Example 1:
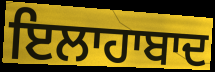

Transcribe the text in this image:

ਇਲਾਹਾਬਾਦ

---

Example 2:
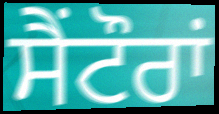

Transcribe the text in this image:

ਸੈਂਟੌਰਾਂ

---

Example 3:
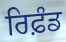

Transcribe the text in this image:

ਰਿਫ਼ੰਡ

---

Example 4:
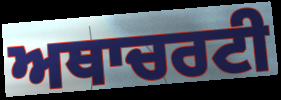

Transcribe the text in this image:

ਅਥਾਚਰਟੀ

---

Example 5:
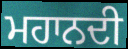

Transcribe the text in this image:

ਮਹਾਨਦੀ